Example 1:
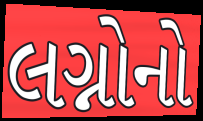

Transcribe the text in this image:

લગ્નોનો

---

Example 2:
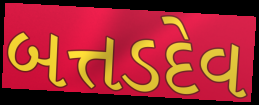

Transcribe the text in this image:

બત્તડદેવ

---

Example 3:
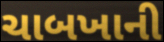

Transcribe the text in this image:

ચાબખાની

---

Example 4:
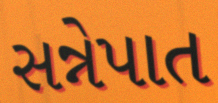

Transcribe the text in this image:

સન્નેપાત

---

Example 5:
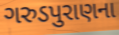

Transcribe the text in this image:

ગરુડપુરાણના